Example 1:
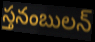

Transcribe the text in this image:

స్తనంబులన్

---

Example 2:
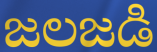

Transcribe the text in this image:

జలజడి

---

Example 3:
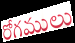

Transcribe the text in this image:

రోగములు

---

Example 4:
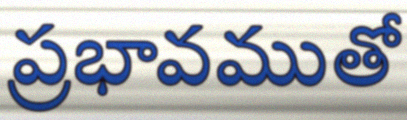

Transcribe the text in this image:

ప్రభావముతో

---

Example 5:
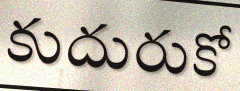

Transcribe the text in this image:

కుదురుకో